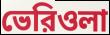
ভেরিওলা